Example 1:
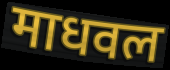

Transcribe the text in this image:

माधवल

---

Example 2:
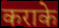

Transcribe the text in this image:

कराके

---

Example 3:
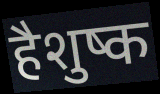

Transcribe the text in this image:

हैशुष्क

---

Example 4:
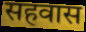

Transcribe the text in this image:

सहवास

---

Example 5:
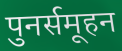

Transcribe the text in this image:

पुनर्समूहन